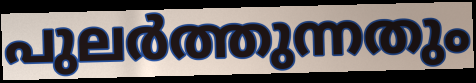
പുലർത്തുന്നതും